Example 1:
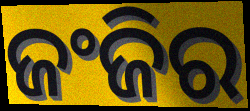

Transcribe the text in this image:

ଜଂଜିର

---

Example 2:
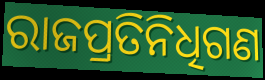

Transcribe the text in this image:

ରାଜପ୍ରତିନିଧିଗଣ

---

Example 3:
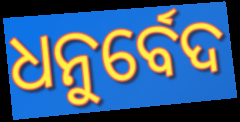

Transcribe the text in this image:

ଧନୁର୍ବେଦ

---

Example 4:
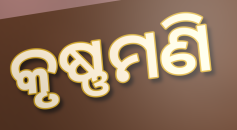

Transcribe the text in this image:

କୃଷ୍ଣମଣି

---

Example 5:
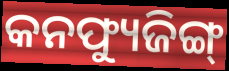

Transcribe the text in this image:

କନଫ୍ୟୁଜିଙ୍ଗ୍